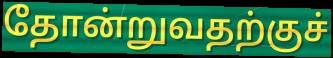
தோன்றுவதற்குச்